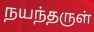
நயந்தருள்